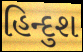
હિન્દુશ